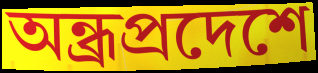
অন্ধ্রপ্রদেশে